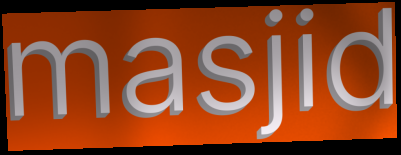
masjid